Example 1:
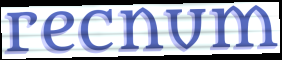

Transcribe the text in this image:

recnum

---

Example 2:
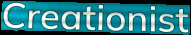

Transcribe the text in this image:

Creationist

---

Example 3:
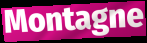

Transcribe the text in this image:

Montagne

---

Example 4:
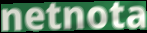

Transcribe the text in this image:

netnota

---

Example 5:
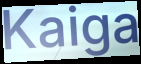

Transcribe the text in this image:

Kaiga